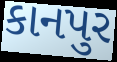
કાનપુર